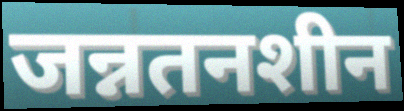
जन्नतनशीन